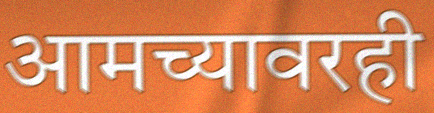
आमच्यावरही